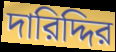
দারিদ্দির